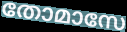
തോമാസേ